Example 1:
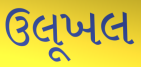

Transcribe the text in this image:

ઉલૂખલ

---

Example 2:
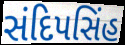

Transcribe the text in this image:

સંદિપસિંહ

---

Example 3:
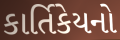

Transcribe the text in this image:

કાર્તિકેયનો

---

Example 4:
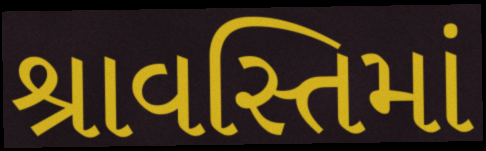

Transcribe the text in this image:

શ્રાવસ્તિમાં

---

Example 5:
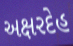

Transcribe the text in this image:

અક્ષરદેહ